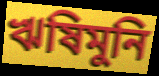
ঋষিমুনি